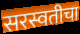
सरस्वतीचा